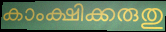
കാംക്ഷിക്കരുതു